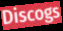
Discogs